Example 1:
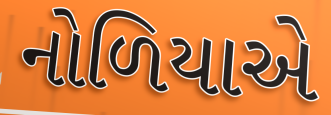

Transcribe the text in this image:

નોળિયાએ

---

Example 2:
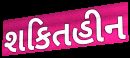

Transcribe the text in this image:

શકિતહીન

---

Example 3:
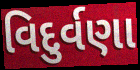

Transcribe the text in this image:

વિદુર્વણા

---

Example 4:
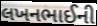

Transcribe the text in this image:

લખનભાઈની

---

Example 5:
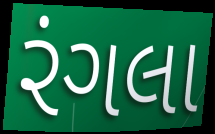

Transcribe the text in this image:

રંગલા